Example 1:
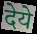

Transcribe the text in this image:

देये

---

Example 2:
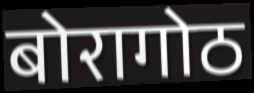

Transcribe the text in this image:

बोरागोठ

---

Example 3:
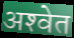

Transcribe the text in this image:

अश्‍वेत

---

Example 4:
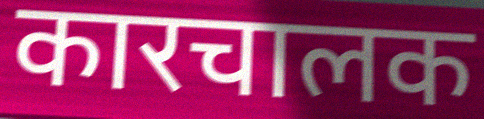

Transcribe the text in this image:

कारचालक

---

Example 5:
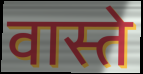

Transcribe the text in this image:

वास्ते